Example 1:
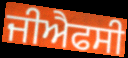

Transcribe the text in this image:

ਜੀਐਫਸੀ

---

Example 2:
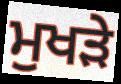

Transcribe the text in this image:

ਮੁਖੜੇ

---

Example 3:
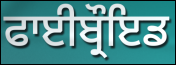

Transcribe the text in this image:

ਫਾਈਬ੍ਰੌਇਡ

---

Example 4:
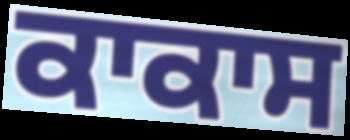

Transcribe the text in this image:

ਕਾਕਾਸ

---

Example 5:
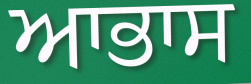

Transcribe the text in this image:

ਆਭਾਸ